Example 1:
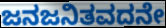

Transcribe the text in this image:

ಜನಜನಿತವದನೇ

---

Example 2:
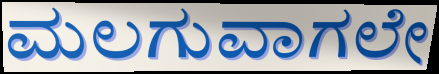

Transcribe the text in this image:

ಮಲಗುವಾಗಲೇ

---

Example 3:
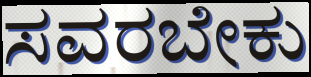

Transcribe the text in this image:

ಸವರಬೇಕು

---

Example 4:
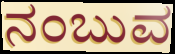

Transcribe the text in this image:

ನಂಬುವ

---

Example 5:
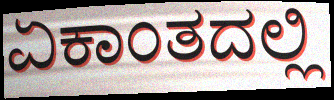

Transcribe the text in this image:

ಏಕಾಂತದಲ್ಲಿ